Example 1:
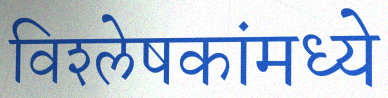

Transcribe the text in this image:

विश्लेषकांमध्ये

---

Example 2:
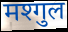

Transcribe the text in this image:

मश्गुल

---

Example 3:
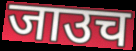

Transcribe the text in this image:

जाउच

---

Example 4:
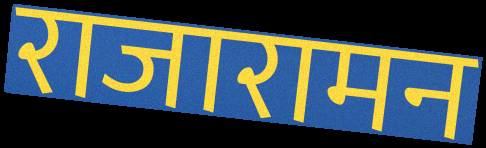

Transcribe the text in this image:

राजारामन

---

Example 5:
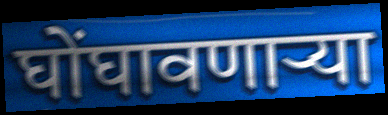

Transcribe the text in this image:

घोंघावणाऱ्या